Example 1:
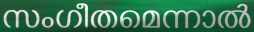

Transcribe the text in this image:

സംഗീതമെന്നാൽ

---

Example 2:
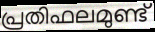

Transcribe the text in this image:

പ്രതിഫലമുണ്ട്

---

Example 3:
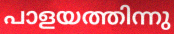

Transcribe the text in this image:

പാളയത്തിന്നു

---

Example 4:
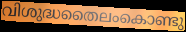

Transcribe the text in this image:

വിശുദ്ധതൈലംകൊണ്ടു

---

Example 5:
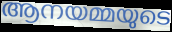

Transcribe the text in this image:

ആനയമ്മയുടെ